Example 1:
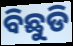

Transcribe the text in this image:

ବିଛୁଡି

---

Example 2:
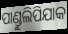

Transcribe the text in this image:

ପାଣ୍ଡୁଲିପିଯାକ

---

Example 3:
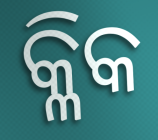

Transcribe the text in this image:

କ୍ଳିକ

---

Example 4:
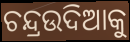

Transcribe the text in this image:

ଚନ୍ଦ୍ରଉଦିଆକୁ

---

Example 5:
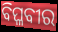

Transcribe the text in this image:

ବିପ୍ଳବୀର